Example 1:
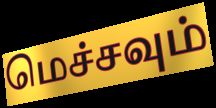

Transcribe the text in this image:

மெச்சவும்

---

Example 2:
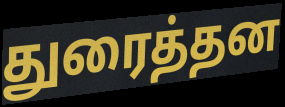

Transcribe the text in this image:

துரைத்தன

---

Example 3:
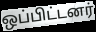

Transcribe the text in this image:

ஒப்பிட்டனர்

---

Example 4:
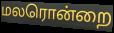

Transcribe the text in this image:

மலரொன்றை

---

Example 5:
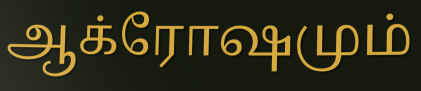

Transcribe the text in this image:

ஆக்ரோஷமும்